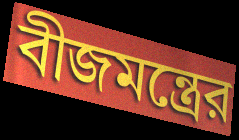
বীজমন্ত্রের